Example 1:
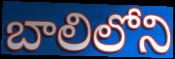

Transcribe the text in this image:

బాలిలోని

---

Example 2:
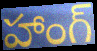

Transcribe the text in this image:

హాంగ్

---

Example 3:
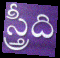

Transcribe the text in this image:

స్త్రీది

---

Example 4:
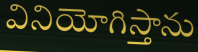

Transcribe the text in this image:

వినియోగిస్తాను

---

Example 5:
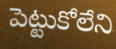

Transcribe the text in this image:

పెట్టుకోలేని